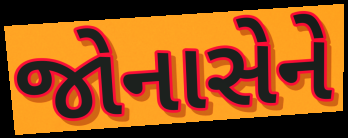
જોનાસેને